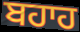
ਬਹਾਹ